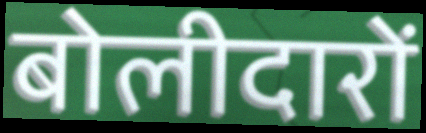
बोलीदारों